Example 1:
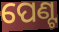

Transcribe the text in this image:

ପେଣ୍ଟ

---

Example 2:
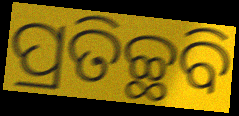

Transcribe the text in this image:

ପ୍ରତିଚ୍ଛବି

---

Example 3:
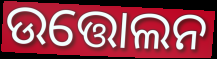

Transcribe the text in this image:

ଉତ୍ତୋଲନ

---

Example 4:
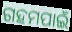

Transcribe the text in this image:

ଗହମପାଇଁ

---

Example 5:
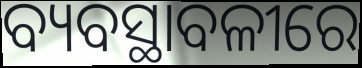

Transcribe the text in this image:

ବ୍ୟବସ୍ଥାବଳୀରେ